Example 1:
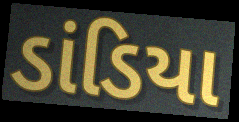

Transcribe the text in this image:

ડાંડિયા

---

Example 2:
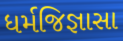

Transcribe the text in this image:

ધર્મજિજ્ઞાસા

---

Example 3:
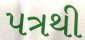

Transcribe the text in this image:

પત્રથી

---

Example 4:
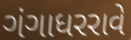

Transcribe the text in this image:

ગંગાધરરાવે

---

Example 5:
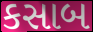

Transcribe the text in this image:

કસાબ